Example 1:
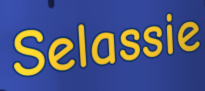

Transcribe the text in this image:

Selassie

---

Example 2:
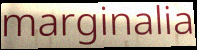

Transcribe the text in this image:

marginalia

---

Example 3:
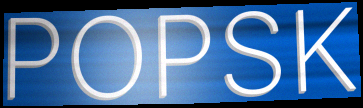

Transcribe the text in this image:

POPSK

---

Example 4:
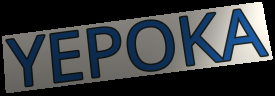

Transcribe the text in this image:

YEPOKA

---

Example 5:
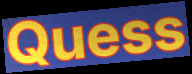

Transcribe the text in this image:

Quess